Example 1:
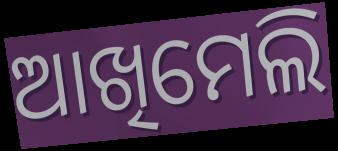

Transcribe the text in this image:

ଆଖିମେଲି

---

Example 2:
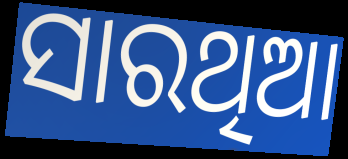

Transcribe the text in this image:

ସାରଥିଆ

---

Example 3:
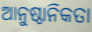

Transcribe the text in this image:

ଆନୁଷ୍ଠାନିକତା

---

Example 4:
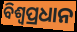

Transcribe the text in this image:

ବିଶ୍ୱପ୍ରଧାନ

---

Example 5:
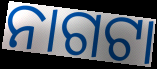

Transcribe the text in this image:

ନାଗଟା